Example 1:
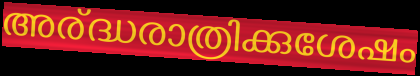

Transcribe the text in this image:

അര്ദ്ധരാത്രിക്കുശേഷം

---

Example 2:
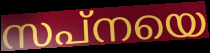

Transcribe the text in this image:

സപ്‌നയെ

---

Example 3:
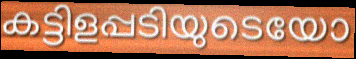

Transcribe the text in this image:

കട്ടിളപ്പടിയുടെയോ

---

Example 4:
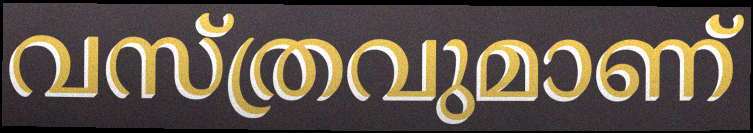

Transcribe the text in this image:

വസ്ത്രവുമാണ്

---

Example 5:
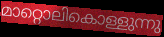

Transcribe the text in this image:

മാറ്റൊലികൊള്ളുന്നു